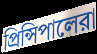
প্রিন্সিপালেরা